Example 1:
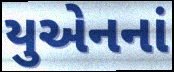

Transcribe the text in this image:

યુએનનાં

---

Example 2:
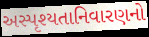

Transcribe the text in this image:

અસ્પૃશ્યતાનિવારણનો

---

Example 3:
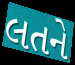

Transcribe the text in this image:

લતને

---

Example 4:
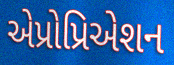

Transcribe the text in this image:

એપ્રોપ્રિએશન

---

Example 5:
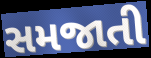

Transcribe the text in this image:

સમજાતી